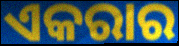
ଏକରାର